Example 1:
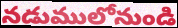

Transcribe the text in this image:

నడుములోనుండి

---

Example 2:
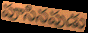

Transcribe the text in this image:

పూసినపుడు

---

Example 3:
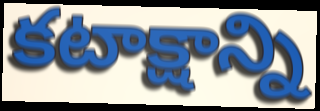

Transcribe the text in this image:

కటాక్షాన్ని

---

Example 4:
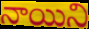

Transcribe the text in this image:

నాయిని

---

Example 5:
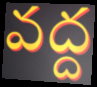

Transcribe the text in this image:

వద్ద